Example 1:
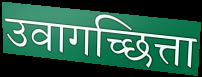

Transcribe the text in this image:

उवागच्छित्ता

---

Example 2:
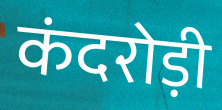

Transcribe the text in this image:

कंदरोड़ी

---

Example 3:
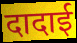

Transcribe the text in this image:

दादाई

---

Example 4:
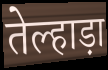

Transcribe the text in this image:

तेल्हाड़ा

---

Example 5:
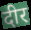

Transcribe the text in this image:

दीर